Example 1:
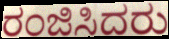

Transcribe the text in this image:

ರಂಜಿಸಿದರು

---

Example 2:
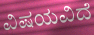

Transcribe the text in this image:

ವಿಷಯವಿದೆ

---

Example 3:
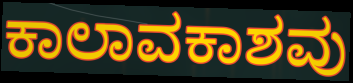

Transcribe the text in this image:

ಕಾಲಾವಕಾಶವು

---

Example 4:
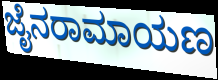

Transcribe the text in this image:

ಜೈನರಾಮಾಯಣ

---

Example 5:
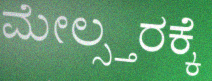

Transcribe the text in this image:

ಮೇಲ್ಸ್ತರಕ್ಕೆ